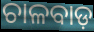
ଚାଳବାଡ଼